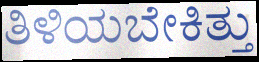
ತಿಳಿಯಬೇಕಿತ್ತು